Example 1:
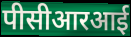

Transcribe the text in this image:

पीसीआरआई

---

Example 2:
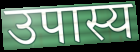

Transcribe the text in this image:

उपास्य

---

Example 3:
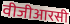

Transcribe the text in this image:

वीजीआरसी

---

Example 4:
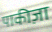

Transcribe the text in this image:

पाकीज़ा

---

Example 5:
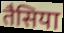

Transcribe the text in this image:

तैसिया